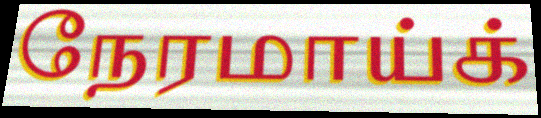
நேரமாய்க்